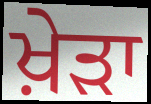
ਖ਼ੇੜਾ